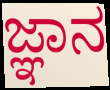
ಜ್ಞಾನ